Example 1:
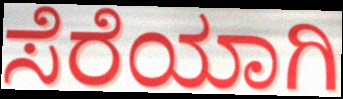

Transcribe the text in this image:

ಸೆರೆಯಾಗಿ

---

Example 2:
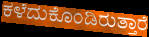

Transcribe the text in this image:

ಕಳೆದುಕೊಂಡಿರುತ್ತಾರೆ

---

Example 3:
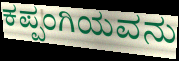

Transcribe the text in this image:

ಕಪ್ಪಂಗಿಯವನು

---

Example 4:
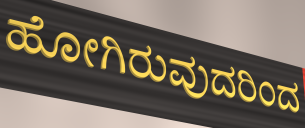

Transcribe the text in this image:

ಹೋಗಿರುವುದರಿಂದ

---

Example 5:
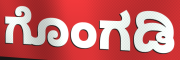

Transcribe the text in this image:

ಗೊಂಗಡಿ